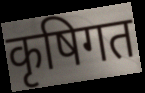
कृषिगत